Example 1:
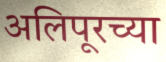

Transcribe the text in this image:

अलिपूरच्या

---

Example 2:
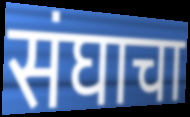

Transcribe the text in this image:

संघाचा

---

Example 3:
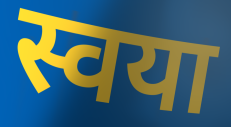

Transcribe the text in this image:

स्वया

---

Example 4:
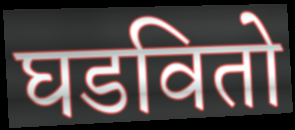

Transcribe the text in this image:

घडवितो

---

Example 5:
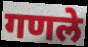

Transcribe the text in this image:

गणले